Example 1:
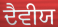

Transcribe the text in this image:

ਦੈਵੀਯ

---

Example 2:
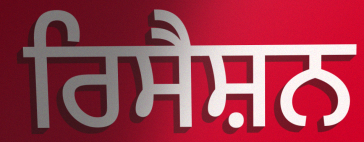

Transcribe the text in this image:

ਰਿਸੈਸ਼ਨ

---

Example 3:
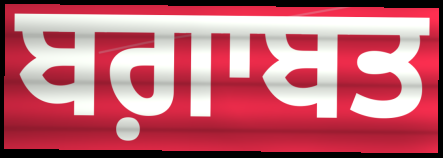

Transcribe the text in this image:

ਬਗ਼ਾਬਤ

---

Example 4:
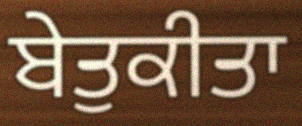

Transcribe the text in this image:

ਬੇਤੁਕੀਤਾ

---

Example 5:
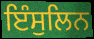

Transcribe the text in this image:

ਇੰਸੁਲਿਨ